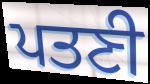
ਪਤਣੀ